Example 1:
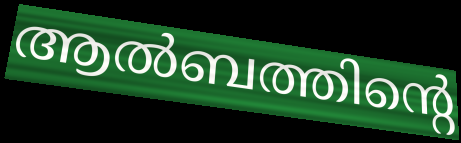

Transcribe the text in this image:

ആൽബത്തിന്റെ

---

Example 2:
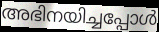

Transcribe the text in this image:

അഭിനയിച്ചപ്പോൾ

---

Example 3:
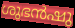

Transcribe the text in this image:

ശുഭൻഷു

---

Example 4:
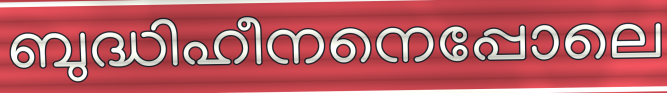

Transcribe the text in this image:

ബുദ്ധിഹീനനെപ്പോലെ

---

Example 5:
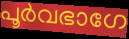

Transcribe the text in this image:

പൂർവഭാഗേ